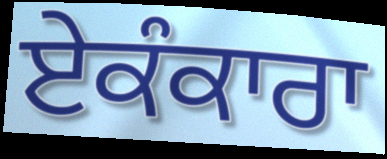
ਏਕੰਕਾਰਾ